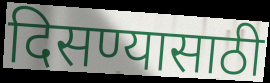
दिसण्यासाठी